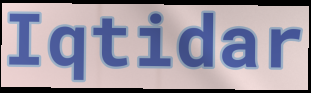
Iqtidar